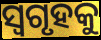
ସ୍ୱଗୃହକୁ